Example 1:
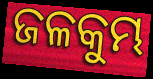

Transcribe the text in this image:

ଜଳକୁମ୍ଭ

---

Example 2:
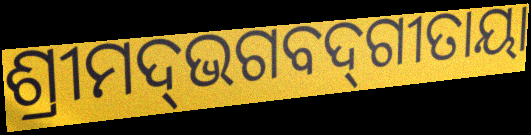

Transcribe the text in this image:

ଶ୍ରୀମଦ୍‌ଭଗବଦ୍‌ଗୀତାୟା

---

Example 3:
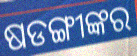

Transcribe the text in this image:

ଷଡଙ୍ଗୀଙ୍କର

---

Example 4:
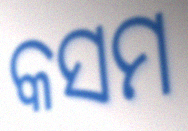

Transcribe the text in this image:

କସମ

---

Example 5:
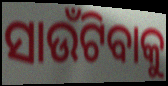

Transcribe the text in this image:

ସାଉଁଟିବାକୁ